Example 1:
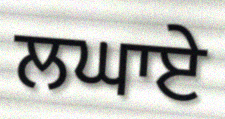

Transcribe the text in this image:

ਲਘਾਏ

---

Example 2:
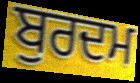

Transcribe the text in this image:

ਬੁਰਦਮ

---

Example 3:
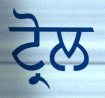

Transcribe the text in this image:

ਟ੍ਰੋਲ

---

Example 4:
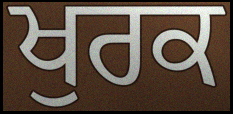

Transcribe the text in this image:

ਖੁਰਕ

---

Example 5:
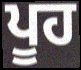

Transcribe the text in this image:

ਪੂਹ